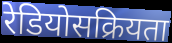
रेडियोसक्रियता